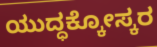
ಯುದ್ಧಕ್ಕೋಸ್ಕರ